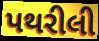
પથરીલી